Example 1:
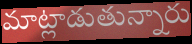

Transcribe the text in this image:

మాట్లాడుతున్నారు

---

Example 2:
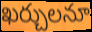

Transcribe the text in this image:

ఖర్చులనూ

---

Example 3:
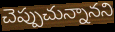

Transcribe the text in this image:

చెప్పుచున్నానని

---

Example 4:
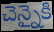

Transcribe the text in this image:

చెన్నైకి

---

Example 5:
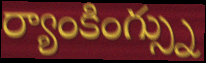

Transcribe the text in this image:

ర్యాంకింగ్స్ను